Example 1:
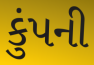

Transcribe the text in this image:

કુંપની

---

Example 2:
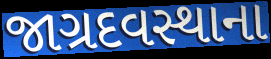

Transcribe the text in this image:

જાગ્રદવસ્થાના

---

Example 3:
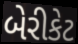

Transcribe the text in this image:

બેરીકેટ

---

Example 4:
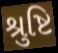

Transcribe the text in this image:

શ્રુષ્ટિ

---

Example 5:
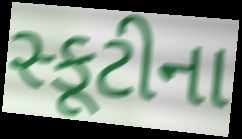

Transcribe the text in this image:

સ્કૂટીના